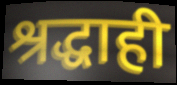
श्रद्धाही